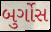
બુર્ગોસ